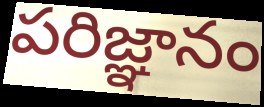
పరిజ్ఞానం